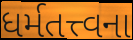
ધર્મતત્ત્વના